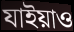
যাইয়াও